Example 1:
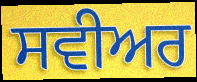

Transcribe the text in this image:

ਸਵੀਅਰ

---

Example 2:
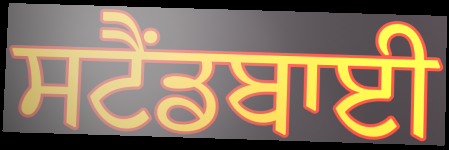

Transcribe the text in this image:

ਸਟੈਂਡਬਾਈ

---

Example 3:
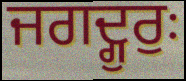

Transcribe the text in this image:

ਜਗਦ੍ਗੁਰੁਃ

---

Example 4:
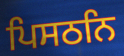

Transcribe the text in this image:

ਪਿਸਠਨਿ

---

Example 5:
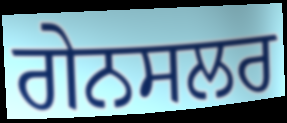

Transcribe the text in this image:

ਗੇਨਸਲਰ